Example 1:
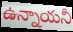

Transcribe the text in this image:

ఉన్నాయనీ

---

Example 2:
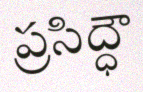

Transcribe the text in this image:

ప్రసిద్ధౌ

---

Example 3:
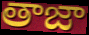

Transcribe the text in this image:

తాజా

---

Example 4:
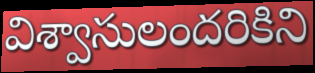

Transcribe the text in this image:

విశ్వాసులందరికిని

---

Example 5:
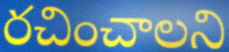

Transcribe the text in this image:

రచించాలని